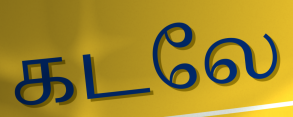
கடலே